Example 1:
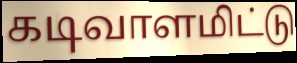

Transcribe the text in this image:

கடிவாளமிட்டு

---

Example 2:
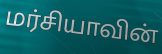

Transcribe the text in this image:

மர்சியாவின்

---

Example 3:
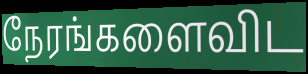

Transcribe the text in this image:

நேரங்களைவிட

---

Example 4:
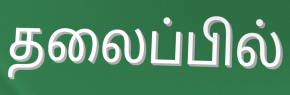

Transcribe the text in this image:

தலைப்பில்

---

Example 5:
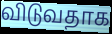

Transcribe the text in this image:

விடுவதாக